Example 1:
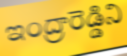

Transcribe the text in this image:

ఇంద్రారెడ్డిని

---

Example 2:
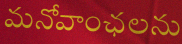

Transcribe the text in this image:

మనోవాంఛలను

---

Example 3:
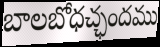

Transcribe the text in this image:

బాలబోధచ్ఛందము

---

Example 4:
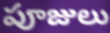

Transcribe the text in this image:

పూజులు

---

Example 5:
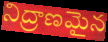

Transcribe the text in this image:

నిద్రాణమైన